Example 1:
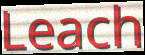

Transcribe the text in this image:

Leach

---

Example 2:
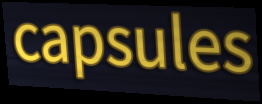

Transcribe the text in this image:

capsules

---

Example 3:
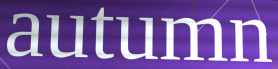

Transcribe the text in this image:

autumn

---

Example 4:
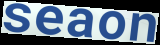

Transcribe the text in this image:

seaon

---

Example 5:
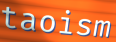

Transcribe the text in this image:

taoism